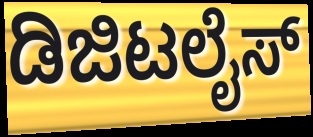
ಡಿಜಿಟಲೈಸ್